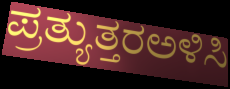
ಪ್ರತ್ಯುತ್ತರಅಳಿಸಿ